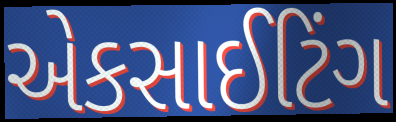
એકસાઈટિંગ